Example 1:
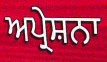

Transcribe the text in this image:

ਅਪ੍ਰੇਸ਼ਨਾ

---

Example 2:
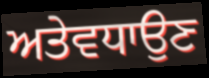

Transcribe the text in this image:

ਅਤੇਵਧਾਉਣ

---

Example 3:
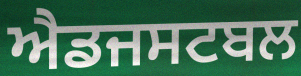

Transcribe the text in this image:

ਐਡਜਸਟਬਲ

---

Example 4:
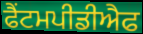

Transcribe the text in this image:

ਫੈਂਟਮਪੀਡੀਐਫ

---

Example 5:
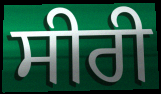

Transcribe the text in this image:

ਸੀਰੀ